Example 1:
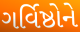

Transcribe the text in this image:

ગર્વિષ્ઠોને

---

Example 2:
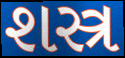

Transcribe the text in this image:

શસ્ત્ર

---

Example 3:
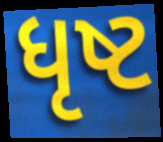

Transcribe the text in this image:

ધૃષ્ટ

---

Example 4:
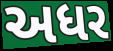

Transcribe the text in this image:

અધર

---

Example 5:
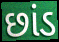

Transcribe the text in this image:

છાંડ